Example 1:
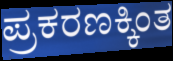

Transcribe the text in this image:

ಪ್ರಕರಣಕ್ಕಿಂತ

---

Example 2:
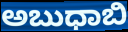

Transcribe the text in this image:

ಅಬುಧಾಬಿ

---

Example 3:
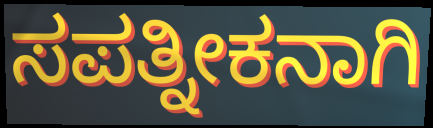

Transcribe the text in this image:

ಸಪತ್ನೀಕನಾಗಿ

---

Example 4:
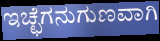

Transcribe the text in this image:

ಇಚ್ಛೆಗನುಗುಣವಾಗಿ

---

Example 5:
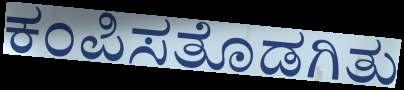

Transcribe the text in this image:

ಕಂಪಿಸತೊಡಗಿತು